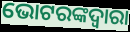
ଭୋଟରଙ୍କଦ୍ଵାରା